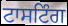
ਟਾਸਟਿੰਗ